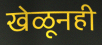
खेळूनही